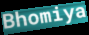
Bhomiya